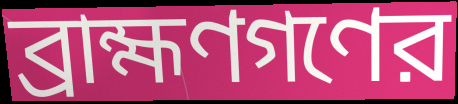
ব্রাহ্মণগণের